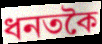
ধনতকৈ